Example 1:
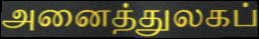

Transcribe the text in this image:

அனைத்துலகப்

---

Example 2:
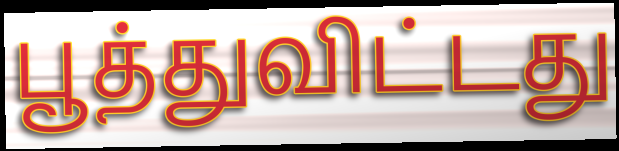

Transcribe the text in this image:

பூத்துவிட்டது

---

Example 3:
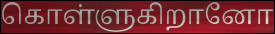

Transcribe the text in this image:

கொள்ளுகிறானோ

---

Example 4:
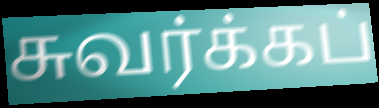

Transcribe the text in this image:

சுவர்க்கப்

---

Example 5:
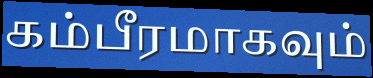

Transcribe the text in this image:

கம்பீரமாகவும்